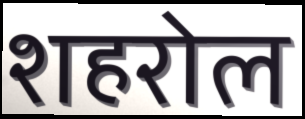
शहरोल